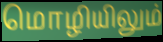
மொழியிலும்